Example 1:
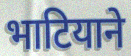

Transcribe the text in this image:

भाटियाने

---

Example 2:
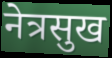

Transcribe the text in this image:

नेत्रसुख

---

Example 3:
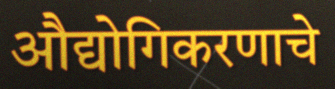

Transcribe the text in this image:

औद्योगिकरणाचे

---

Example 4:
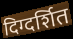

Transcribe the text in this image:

दिग्दर्शित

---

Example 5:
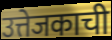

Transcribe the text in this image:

उत्तेजकाची